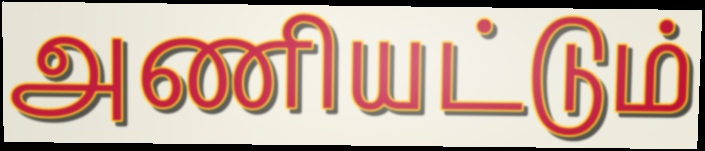
அணியட்டும்